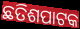
ଛତିଶପାଟକ